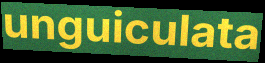
unguiculata